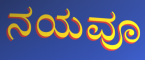
ನಯವೂ